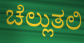
ಚೆಲ್ಲುತಲಿ